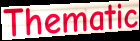
Thematic